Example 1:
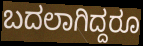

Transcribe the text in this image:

ಬದಲಾಗಿದ್ದರೂ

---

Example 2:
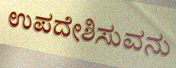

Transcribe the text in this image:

ಉಪದೇಶಿಸುವನು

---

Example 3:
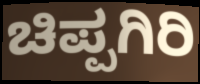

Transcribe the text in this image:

ಚಿಪ್ಪಗಿರಿ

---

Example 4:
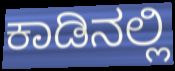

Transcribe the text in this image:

ಕಾಡಿನಲ್ಲಿ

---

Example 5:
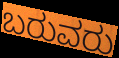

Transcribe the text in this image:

ಬರುವರು